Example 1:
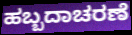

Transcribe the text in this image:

ಹಬ್ಬದಾಚರಣೆ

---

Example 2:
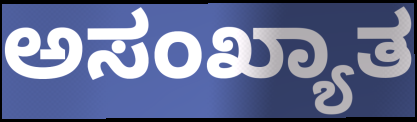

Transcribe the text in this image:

ಅಸಂಖ್ಯಾತ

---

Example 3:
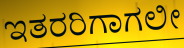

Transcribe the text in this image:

ಇತರರಿಗಾಗಲೀ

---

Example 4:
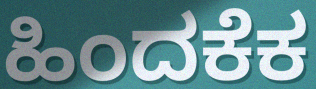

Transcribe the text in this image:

ಹಿಂದಕೆಕ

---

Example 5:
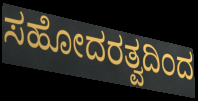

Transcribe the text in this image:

ಸಹೋದರತ್ವದಿಂದ